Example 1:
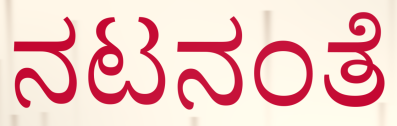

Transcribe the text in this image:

ನಟನಂತೆ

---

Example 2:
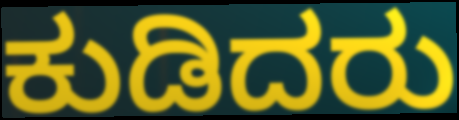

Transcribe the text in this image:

ಕುಡಿದರು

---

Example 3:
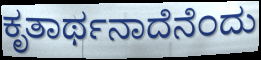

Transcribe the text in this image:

ಕೃತಾರ್ಥನಾದೆನೆಂದು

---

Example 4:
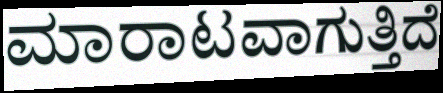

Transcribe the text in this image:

ಮಾರಾಟವಾಗುತ್ತಿದೆ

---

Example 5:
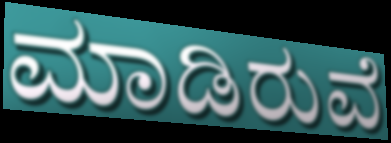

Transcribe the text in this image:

ಮಾಡಿರುವೆ